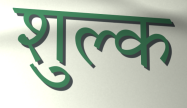
शुल्क